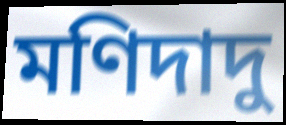
মণিদাদু